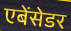
एबेंसेडर